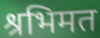
श्रभिमत